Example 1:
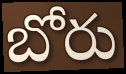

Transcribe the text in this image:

బోరు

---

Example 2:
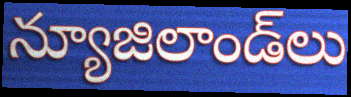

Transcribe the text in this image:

న్యూజిలాండ్‌లు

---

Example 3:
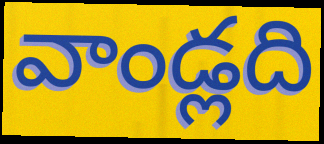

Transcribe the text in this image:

వాండ్లది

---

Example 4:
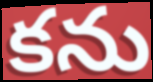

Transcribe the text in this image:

కను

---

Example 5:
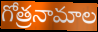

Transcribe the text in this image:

గోత్రనామాల